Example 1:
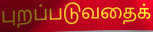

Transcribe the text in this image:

புறப்படுவதைக்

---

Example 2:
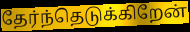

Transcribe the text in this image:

தேர்ந்தெடுக்கிறேன்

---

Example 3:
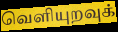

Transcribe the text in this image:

வெளியுறவுக்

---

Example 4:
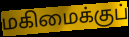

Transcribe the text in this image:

மகிமைக்குப்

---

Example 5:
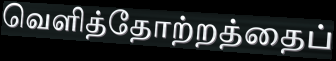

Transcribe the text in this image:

வெளித்தோற்றத்தைப்